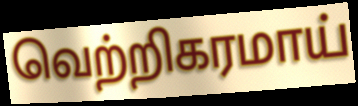
வெற்றிகரமாய்